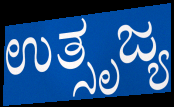
ಉತ್ಸೃಜ್ಯ